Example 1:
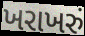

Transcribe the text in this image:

ખરાખરું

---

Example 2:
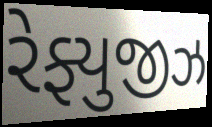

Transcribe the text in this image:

રેફ્યુજીઝ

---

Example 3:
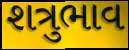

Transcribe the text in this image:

શત્રુભાવ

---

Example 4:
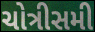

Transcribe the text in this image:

ચોત્રીસમી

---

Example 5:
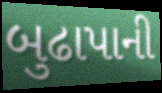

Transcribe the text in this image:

બુઢાપાની